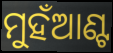
ମୁହଁଆଣ୍ଟ